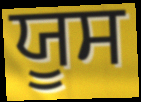
ਯੂਸ